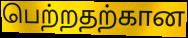
பெற்றதற்கான